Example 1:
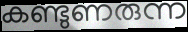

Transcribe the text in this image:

കണ്ടുണരുന്ന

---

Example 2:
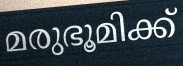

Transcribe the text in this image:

മരുഭൂമിക്ക്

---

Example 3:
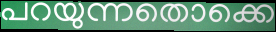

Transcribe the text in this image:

പറയുന്നതൊക്കെ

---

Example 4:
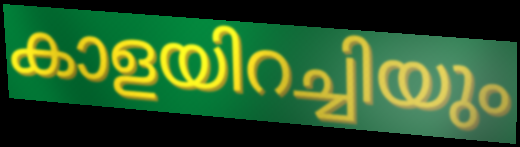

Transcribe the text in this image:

കാളയിറച്ചിയും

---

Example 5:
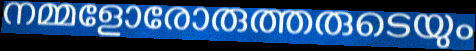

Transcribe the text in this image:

നമ്മളോരോരുത്തരുടെയും